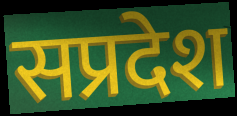
सप्रदेश